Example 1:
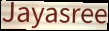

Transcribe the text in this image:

Jayasree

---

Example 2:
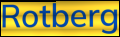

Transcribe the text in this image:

Rotberg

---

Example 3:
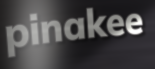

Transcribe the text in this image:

pinakee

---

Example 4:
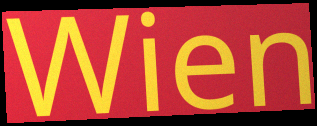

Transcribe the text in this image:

Wien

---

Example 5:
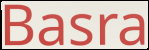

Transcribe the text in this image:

Basra